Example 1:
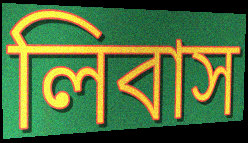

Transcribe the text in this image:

লিবাস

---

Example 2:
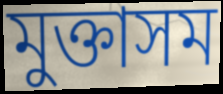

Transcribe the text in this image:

মুক্তাসম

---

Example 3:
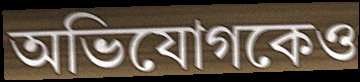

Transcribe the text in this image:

অভিযোগকেও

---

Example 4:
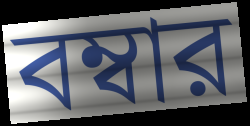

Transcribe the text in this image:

বম্বার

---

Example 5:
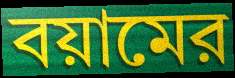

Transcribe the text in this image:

বয়ামের